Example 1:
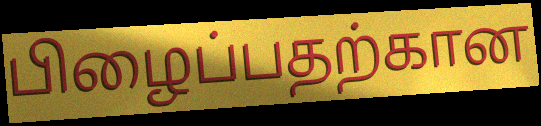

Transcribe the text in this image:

பிழைப்பதற்கான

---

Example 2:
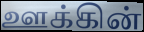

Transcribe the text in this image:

ஊக்கின்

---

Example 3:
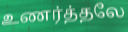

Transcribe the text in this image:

உணர்த்தலே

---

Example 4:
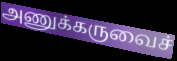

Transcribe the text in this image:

அணுக்கருவைச்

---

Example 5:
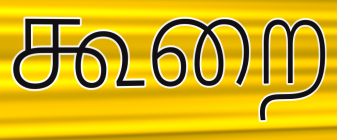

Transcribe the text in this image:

கூறை